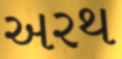
અરથ